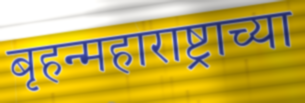
बृहन्महाराष्ट्राच्या